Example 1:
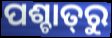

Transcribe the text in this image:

ପଶ୍ଚାତ୍‌ରୁ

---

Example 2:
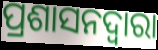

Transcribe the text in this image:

ପ୍ରଶାସନଦ୍ୱାରା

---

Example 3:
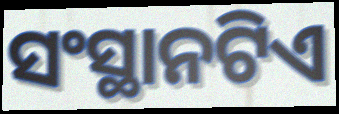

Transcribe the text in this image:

ସଂସ୍ଥାନଟିଏ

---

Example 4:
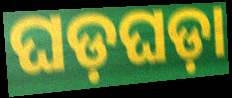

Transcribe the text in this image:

ଘଡ଼ଘଡ଼ା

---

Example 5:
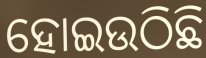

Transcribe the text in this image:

ହୋଇଉଠିଛି